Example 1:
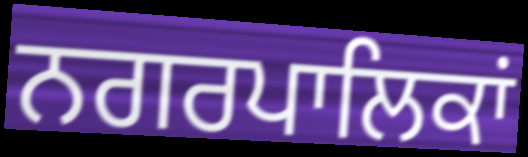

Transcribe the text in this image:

ਨਗਰਪਾਲਿਕਾਂ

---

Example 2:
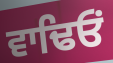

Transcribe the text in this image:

ਵਾਢਿਓਂ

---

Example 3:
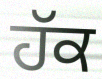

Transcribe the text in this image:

ਹੱਕ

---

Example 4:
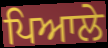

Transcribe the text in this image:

ਪਿਆਲੇ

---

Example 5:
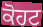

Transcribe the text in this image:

ਕੋਹਟ